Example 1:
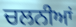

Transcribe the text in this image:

ਚਲਨੀਆਂ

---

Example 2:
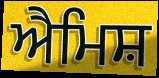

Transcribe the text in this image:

ਐਮਿਸ਼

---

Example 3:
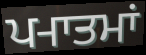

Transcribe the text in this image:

ਪ੍ਮਾਤਮਾਂ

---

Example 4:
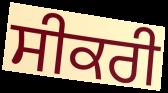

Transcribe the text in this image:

ਸੀਕਰੀ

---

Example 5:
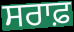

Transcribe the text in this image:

ਸਰਾਫ਼